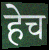
हेच